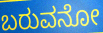
ಬರುವನೋ